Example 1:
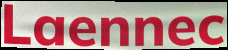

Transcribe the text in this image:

Laennec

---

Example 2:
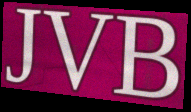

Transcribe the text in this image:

JVB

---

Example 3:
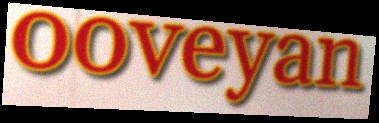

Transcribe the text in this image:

ooveyan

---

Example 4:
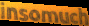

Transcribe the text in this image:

insomuch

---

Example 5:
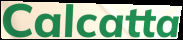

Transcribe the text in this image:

Calcatta